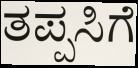
ತಪ್ಪಸಿಗೆ